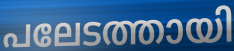
പലേടത്തായി